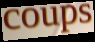
coups